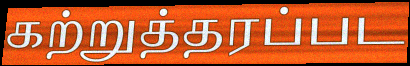
கற்றுத்தரப்பட